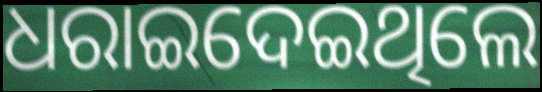
ଧରାଇଦେଇଥିଲେ